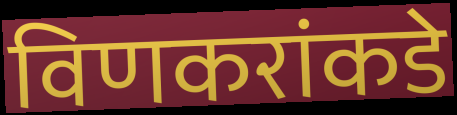
विणकरांकडे